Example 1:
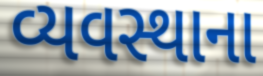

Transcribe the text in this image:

વ્યવસ્થાના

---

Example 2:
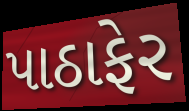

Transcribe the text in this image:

પાઠાફેર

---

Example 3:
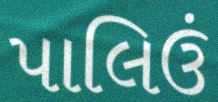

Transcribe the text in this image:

પાલિઉં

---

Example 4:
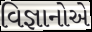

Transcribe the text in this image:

વિજ્ઞાનોએ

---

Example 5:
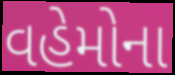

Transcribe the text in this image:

વહેમોના